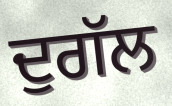
ਦੁਗੱਲ